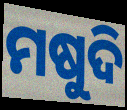
ମଷୁଦି